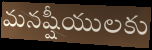
మనష్షీయులకు